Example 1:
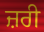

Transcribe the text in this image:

ਜ਼ਰੀ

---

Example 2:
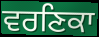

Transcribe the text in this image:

ਵਰਣਿਕਾ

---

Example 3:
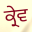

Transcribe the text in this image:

ਕ੍ਰੇਵ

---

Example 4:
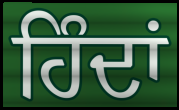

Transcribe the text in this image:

ਹਿੰਦਾਂ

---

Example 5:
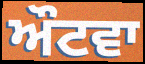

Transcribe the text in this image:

ਔਟਵਾ